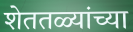
शेततळ्यांच्या